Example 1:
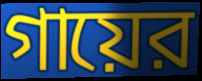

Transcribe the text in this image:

গায়ের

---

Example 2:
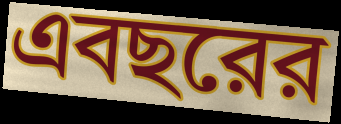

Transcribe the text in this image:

এবছরের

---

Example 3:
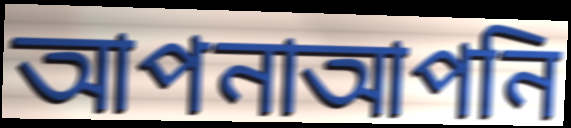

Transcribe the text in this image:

আপনাআপনি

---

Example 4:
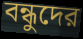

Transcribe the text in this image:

বন্ধুদের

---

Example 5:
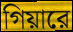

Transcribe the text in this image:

গিয়ারে